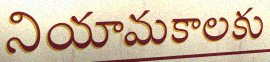
నియామకాలకు